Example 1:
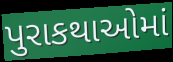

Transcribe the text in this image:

પુરાકથાઓમાં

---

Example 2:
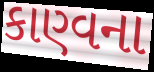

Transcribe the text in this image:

કાણ્વના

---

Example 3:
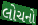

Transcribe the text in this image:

લોચનો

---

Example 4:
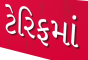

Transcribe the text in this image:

ટેરિફમાં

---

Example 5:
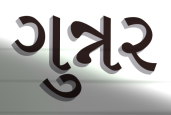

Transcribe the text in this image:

ગુન્નર